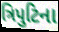
ત્રિપુટિના